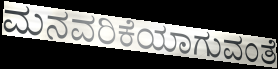
ಮನವರಿಕೆಯಾಗುವಂತೆ